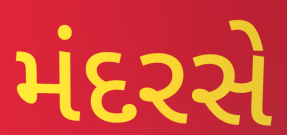
મંદરસે